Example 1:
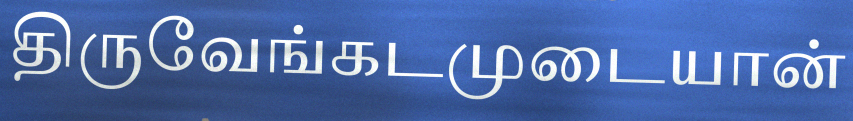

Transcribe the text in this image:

திருவேங்கடமுடையான்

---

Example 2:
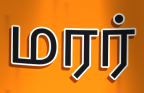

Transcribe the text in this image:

மரர்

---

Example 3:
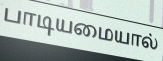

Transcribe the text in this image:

பாடியமையால்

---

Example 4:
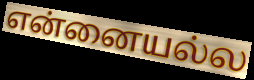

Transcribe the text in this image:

என்னையல்ல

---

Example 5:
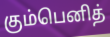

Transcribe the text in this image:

கும்பெனித்